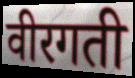
वीरगती